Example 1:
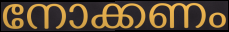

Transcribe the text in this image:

നോക്കണം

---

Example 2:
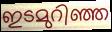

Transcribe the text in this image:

ഇടമുറിഞ്ഞ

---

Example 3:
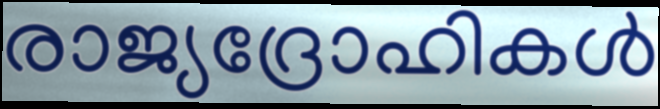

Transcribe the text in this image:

രാജ്യദ്രോഹികൾ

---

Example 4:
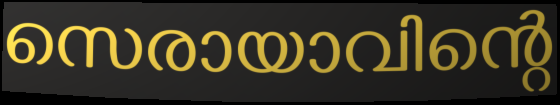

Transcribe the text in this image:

സെരായാവിന്റെ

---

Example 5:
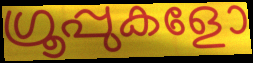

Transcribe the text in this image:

ഗ്രൂപ്പുകളോ